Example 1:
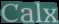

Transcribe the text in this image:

Calx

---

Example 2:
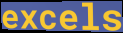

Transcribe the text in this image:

excels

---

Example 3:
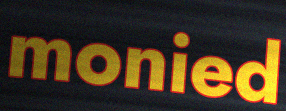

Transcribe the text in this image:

monied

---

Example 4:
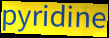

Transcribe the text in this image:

pyridine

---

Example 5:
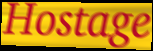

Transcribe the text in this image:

Hostage